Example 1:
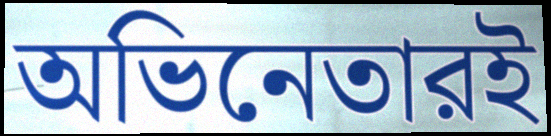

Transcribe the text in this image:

অভিনেতারই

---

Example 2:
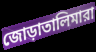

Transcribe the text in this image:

জোড়াতালিমারা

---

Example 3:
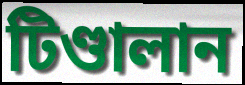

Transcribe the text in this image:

টিণ্ডালান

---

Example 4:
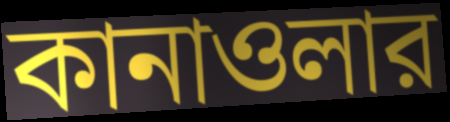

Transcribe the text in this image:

কানাওলার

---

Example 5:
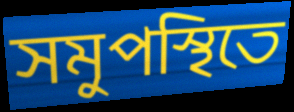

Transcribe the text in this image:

সমুপস্থিতে